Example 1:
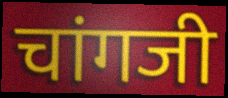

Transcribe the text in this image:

चांगजी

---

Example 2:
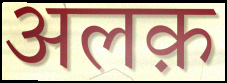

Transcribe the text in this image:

अलक़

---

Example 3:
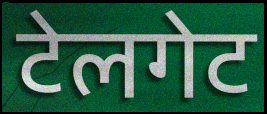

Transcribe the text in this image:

टेलगेट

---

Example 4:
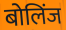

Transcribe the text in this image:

बोलिंज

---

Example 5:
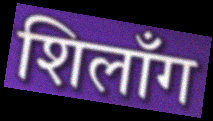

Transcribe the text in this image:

शिलाँग